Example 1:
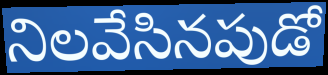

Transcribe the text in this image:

నిలవేసినపుడో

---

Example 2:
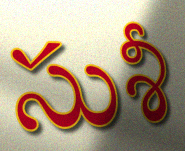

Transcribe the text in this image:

సుశీ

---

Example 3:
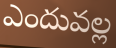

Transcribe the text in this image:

ఎందువల్ల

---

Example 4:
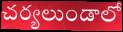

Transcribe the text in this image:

చర్యలుండాలో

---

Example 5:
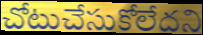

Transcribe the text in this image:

చోటుచేసుకోలేదని